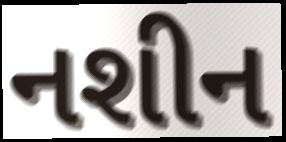
નશીન